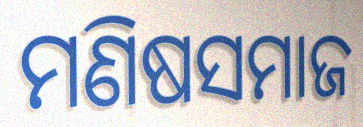
ମଣିଷସମାଜ